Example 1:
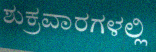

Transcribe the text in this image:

ಶುಕ್ರವಾರಗಳಲ್ಲಿ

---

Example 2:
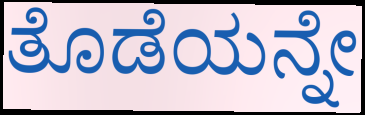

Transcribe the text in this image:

ತೊಡೆಯನ್ನೇ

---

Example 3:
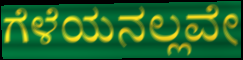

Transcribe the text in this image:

ಗೆಳೆಯನಲ್ಲವೇ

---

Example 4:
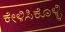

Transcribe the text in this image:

ಕೇಳಿಸಿಕೊಳ್ಳಿ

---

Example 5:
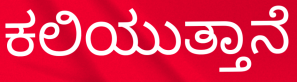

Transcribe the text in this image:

ಕಲಿಯುತ್ತಾನೆ